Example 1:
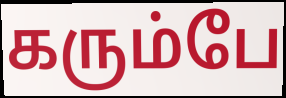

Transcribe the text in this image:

கரும்பே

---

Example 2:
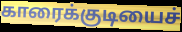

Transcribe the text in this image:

காரைக்குடியைச்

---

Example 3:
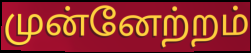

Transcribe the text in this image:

முன்னேற்றம்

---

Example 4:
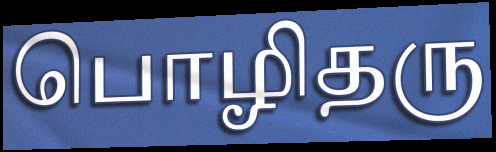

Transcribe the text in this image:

பொழிதரு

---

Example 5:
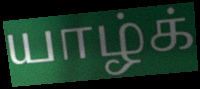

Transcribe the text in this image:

யாழ்க்